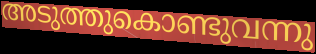
അടുത്തുകൊണ്ടുവന്നു